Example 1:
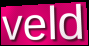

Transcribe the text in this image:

veld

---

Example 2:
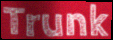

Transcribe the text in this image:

Trunk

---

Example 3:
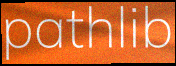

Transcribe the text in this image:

pathlib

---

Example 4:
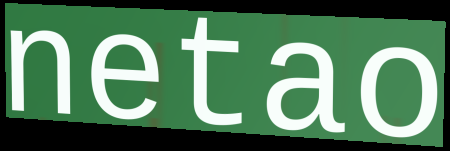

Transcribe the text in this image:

netao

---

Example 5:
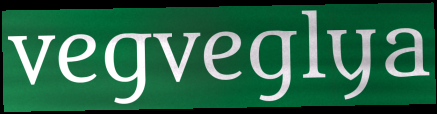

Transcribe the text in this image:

vegveglya